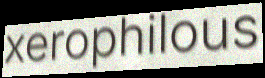
xerophilous